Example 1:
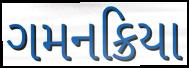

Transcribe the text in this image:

ગમનક્રિયા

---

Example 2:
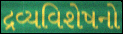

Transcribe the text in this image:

દ્રવ્યવિશેષનો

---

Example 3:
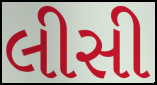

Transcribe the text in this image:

લીસી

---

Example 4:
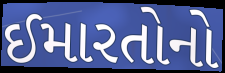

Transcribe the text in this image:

ઈમારતોનો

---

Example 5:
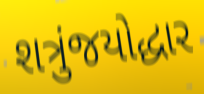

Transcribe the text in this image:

શત્રુંજયોદ્ધાર